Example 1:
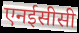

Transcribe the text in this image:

एनईसीसी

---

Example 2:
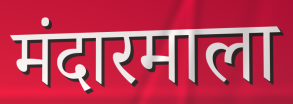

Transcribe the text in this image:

मंदारमाला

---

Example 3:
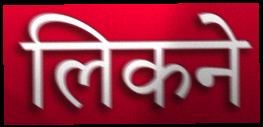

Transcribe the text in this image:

लिकने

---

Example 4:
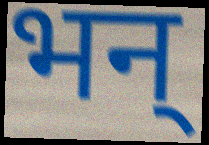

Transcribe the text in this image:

भन्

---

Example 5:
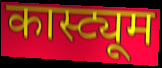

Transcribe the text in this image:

कास्ट्यूम